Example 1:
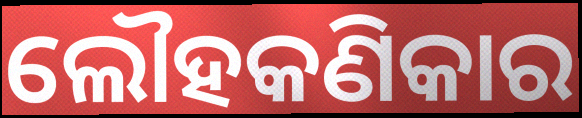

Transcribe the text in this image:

ଲୌହକଣିକାର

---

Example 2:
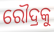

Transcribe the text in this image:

ରୌଦ୍ରକୁ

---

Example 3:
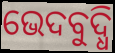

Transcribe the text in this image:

ଭେଦବୁଦ୍ଧି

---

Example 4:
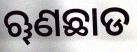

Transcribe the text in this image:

ୠଣଛାଡ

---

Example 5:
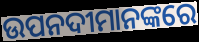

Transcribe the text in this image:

ଉପନଦୀମାନଙ୍କରେ